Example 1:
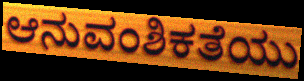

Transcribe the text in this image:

ಆನುವಂಶಿಕತೆಯು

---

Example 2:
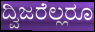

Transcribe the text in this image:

ದ್ವಿಜರೆಲ್ಲರೂ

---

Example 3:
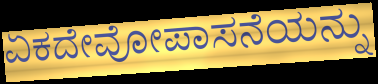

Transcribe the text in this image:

ಏಕದೇವೋಪಾಸನೆಯನ್ನು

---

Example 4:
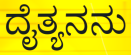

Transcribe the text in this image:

ದೈತ್ಯನನು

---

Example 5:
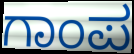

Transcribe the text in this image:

ಗಾಂಪ